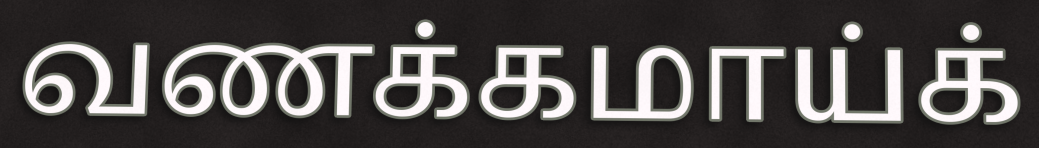
வணக்கமாய்க்